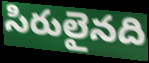
సిరులైనది